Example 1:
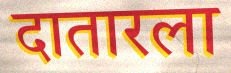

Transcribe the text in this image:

दातारला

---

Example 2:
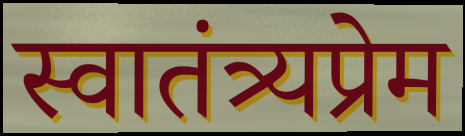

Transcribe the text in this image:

स्वातंत्र्यप्रेम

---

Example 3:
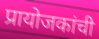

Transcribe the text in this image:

प्रायोजकांची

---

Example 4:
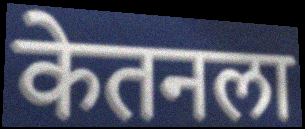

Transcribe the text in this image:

केतनला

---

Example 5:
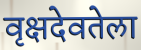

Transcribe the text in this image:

वृक्षदेवतेला